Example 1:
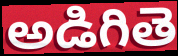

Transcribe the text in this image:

అడిగితె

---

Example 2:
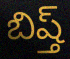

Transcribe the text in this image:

బిష్త్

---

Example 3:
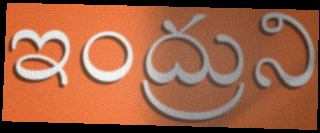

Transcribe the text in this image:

ఇంద్రుని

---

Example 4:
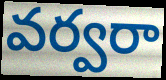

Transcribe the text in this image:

వర్వరా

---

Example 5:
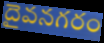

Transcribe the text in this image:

దైవనగరం